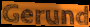
Gerund